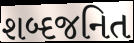
શબ્દજનિત